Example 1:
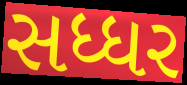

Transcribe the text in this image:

સધ્ધર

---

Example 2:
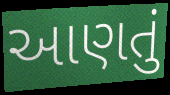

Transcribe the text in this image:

આણતું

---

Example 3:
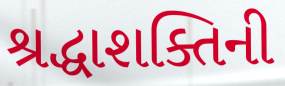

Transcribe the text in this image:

શ્રદ્ધાશક્તિની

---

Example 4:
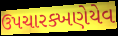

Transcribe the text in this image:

ઉપચારક્ખણેયેવ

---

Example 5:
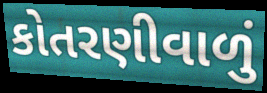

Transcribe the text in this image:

કોતરણીવાળું